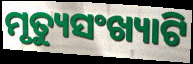
ମୃତ୍ୟୁସଂଖ୍ୟାଟି